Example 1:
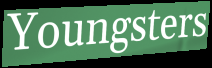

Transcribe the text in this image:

Youngsters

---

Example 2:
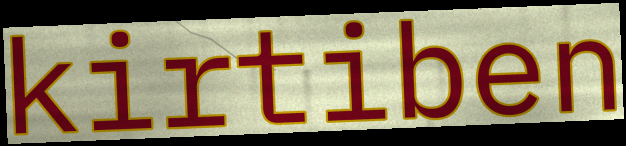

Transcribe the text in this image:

kirtiben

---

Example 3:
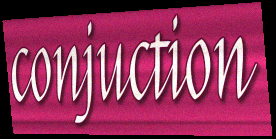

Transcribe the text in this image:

conjuction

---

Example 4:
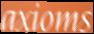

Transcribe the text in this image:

axioms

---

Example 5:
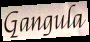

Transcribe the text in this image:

Gangula